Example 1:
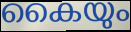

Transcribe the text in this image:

കൈയും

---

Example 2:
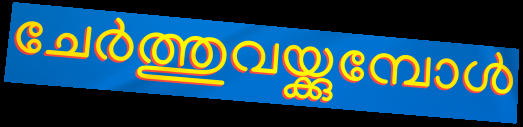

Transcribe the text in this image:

ചേർത്തുവയ്ക്കുമ്പോൾ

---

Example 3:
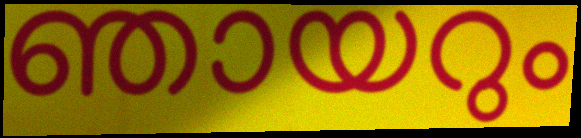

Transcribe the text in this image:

ഞായറും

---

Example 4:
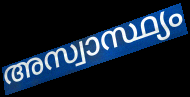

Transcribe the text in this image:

അസ്വാസ്ഥ്യം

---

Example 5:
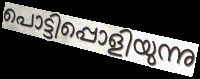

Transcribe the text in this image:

പൊട്ടിപ്പൊളിയുന്നു